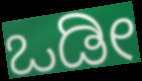
ಒಡೀ